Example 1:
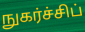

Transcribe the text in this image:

நுகர்ச்சிப்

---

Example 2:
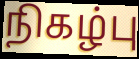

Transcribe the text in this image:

நிகழ்பு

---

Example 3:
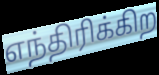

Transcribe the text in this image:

எந்திரிக்கிற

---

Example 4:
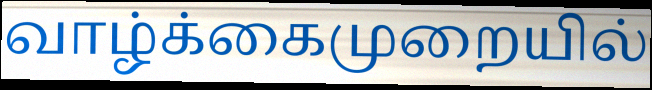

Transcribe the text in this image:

வாழ்க்கைமுறையில்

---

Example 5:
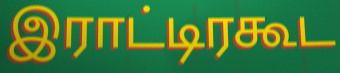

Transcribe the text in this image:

இராட்டிரகூட